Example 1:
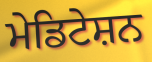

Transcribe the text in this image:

ਮੇਡਿਟੇਸ਼ਨ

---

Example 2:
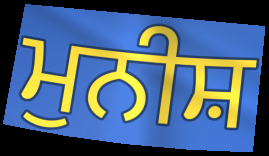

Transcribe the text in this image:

ਮੁਨੀਸ਼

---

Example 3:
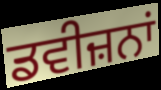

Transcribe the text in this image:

ਡਵੀਜ਼ਨਾਂ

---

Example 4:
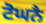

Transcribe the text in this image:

ਟੋਘਨੈ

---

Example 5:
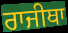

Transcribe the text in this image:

ਰਾਜੀਥਾ